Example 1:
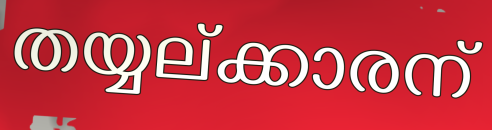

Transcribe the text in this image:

തയ്യല്ക്കാരന്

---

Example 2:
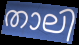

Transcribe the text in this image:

താലി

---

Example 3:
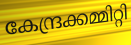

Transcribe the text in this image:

കേന്ദ്രക്കമ്മിറ്റി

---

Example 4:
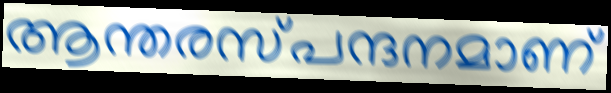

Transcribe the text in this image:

ആന്തരസ്പന്ദനമാണ്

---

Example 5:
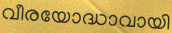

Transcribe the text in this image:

വീരയോദ്ധാവായി